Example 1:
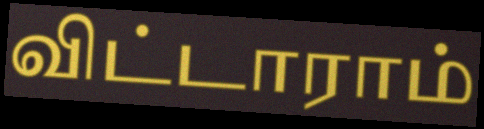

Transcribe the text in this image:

விட்டாராம்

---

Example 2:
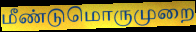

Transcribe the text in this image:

மீண்டுமொருமுறை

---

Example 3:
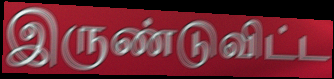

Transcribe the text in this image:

இருண்டுவிட்ட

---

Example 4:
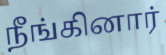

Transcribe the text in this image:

நீங்கினார்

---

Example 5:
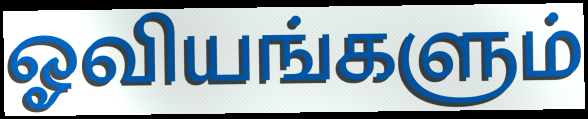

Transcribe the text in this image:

ஓவியங்களும்